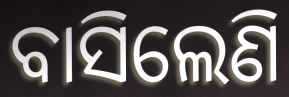
ବାସିଲେଣି